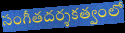
సంగీతదర్శకత్వంలో